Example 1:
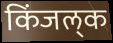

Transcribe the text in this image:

किंजल्क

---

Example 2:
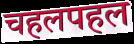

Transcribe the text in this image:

चहलपहल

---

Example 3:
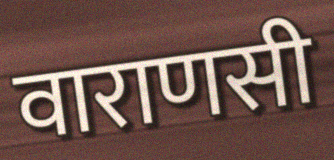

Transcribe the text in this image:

वाराणसी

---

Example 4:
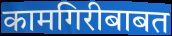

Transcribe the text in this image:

कामगिरीबाबत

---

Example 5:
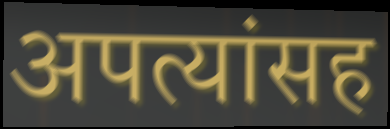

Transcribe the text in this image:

अपत्यांसह